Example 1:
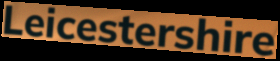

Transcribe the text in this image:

Leicestershire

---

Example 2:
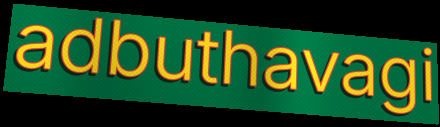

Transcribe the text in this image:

adbuthavagi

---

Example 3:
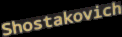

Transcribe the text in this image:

Shostakovich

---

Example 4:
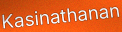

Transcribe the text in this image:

Kasinathanan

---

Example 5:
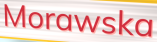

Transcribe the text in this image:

Morawska